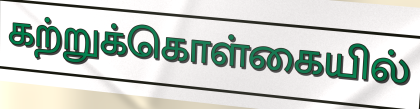
கற்றுக்கொள்கையில்